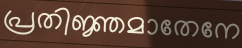
പ്രതിജ്ഞമാതേനേ